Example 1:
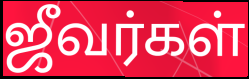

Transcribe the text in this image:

ஜீவர்கள்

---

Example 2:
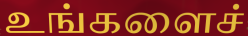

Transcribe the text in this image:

உங்களைச்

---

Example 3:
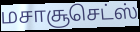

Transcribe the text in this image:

மசாசூசெட்ஸ்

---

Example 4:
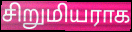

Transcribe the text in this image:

சிறுமியராக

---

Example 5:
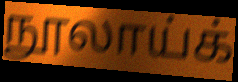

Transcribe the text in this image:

நூலாய்க்